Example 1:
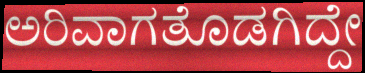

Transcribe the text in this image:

ಅರಿವಾಗತೊಡಗಿದ್ದೇ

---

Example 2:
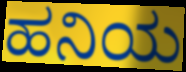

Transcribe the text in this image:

ಹನಿಯ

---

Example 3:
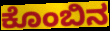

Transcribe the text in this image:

ಕೊಂಬಿನ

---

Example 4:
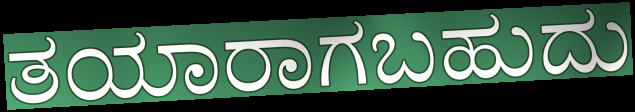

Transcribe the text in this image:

ತಯಾರಾಗಬಹುದು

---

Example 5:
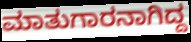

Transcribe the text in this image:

ಮಾತುಗಾರನಾಗಿದ್ದ